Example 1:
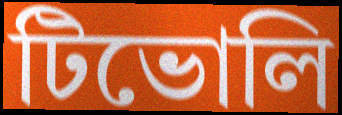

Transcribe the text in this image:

টিভোলি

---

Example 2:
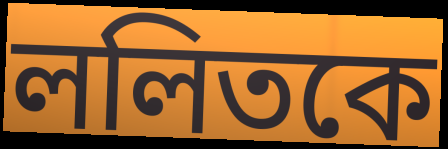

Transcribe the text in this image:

ললিতকে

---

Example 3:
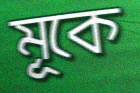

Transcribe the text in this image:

মূকে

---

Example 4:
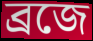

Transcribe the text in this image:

ব্রজে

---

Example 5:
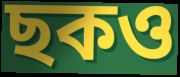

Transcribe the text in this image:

ছকও